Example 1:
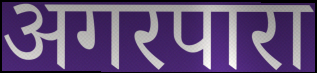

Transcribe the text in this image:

अगरपारा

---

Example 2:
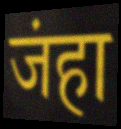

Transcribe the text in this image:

जंहा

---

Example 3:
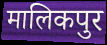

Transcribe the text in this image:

मालिकपुर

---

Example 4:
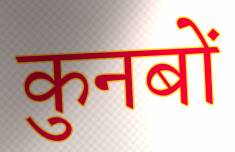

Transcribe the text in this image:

कुनबों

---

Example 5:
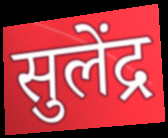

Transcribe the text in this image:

सुलेंद्र